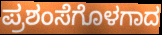
ಪ್ರಶಂಸೆಗೊಳಗಾದ